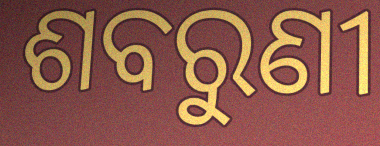
ଶବରୁଣୀ